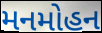
મનમોહન